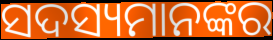
ସଦସ୍ୟମାନଙ୍କର